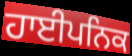
ਹਾਈਪਨਿਕ